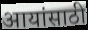
आयांसाठी